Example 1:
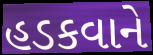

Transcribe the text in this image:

હડકવાને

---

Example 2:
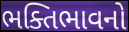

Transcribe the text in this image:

ભક્તિભાવનો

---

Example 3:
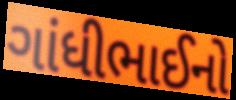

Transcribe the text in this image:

ગાંધીભાઈનો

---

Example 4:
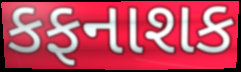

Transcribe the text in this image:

કફનાશક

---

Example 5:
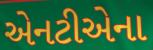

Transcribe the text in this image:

એનટીએના